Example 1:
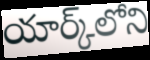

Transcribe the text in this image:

యార్క్‌లోని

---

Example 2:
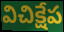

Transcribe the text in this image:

విచిక్షేప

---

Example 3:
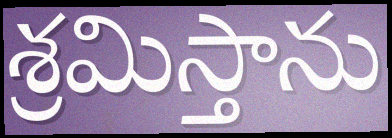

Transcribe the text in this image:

శ్రమిస్తాను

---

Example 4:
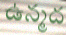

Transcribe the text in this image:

ఉన్మద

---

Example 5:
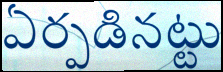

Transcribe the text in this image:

ఏర్పడినట్టు